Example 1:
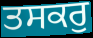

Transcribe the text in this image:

ਤਸਕਰੁ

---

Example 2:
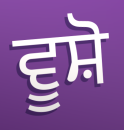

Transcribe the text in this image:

ਵੂਸ਼ੋ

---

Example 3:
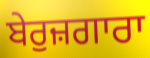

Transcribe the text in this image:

ਬੇਰੁਜ਼ਗਾਰਾ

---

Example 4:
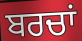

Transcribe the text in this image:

ਬਰਚਾਂ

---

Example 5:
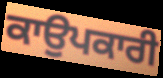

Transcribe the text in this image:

ਕਾਉਪਕਾਰੀ